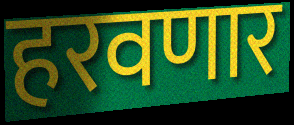
हरवणार